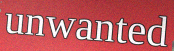
unwanted